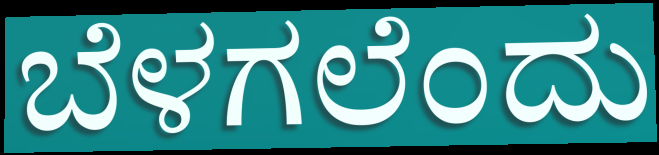
ಬೆಳಗಲೆಂದು